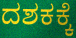
ದಶಕಕ್ಕೆ